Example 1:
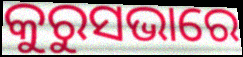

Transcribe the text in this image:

କୁରୁସଭାରେ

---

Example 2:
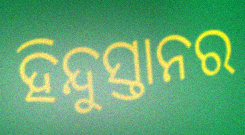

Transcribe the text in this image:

ହିନ୍ଦୁସ୍ତାନର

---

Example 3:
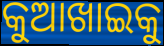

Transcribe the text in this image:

କୁଆଖାଇକୁ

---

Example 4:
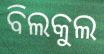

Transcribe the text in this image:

ବିଲକୁଲ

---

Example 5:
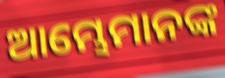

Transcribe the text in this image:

ଆମ୍ଭେମାନଙ୍କ